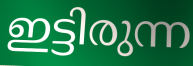
ഇട്ടിരുന്ന